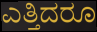
ಎತ್ತಿದರೂ